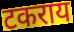
टकराय